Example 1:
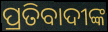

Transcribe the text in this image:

ପ୍ରତିବାଦୀଙ୍କ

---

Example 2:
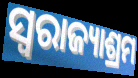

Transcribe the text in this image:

ସ୍ୱରାଜ୍ୟାଶ୍ରମ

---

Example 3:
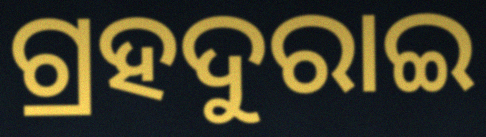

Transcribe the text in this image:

ଗ୍ରହଦୁରାଇ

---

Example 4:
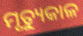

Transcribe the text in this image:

ମୃତ୍ୟୁକାଳ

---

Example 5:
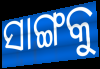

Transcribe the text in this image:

ସାଙ୍ଗକୁ